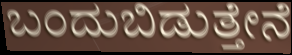
ಬಂದುಬಿಡುತ್ತೇನೆ